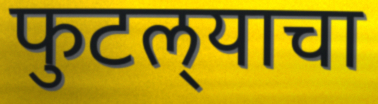
फुटल्याचा